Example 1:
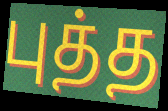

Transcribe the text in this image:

புத்த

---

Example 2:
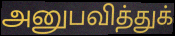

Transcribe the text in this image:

அனுபவித்துக்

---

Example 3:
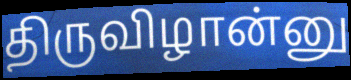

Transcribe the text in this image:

திருவிழான்னு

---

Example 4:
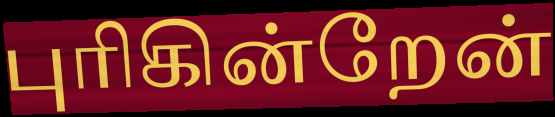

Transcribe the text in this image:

புரிகின்றேன்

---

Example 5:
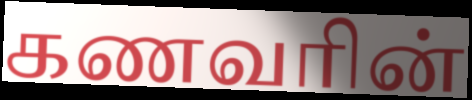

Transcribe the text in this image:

கணவரின்